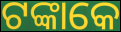
ଟଙ୍କାକେ